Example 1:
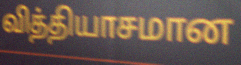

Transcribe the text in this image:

வித்தியாசமான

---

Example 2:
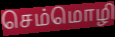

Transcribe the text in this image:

செம்மொழி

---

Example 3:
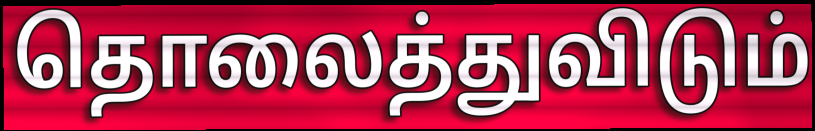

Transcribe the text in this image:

தொலைத்துவிடும்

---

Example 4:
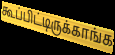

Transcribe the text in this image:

கூப்பிட்டிருக்காங்க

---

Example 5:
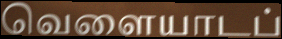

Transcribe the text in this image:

வெளையாடப்